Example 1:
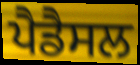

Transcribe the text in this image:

ਪੈਡੈਸਲ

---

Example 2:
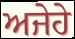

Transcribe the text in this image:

ਅਜੇਹੇ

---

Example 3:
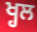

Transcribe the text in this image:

ਖ੍ਹਲ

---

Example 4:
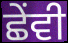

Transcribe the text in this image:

ਛੇੰਵੀ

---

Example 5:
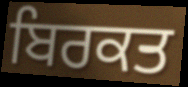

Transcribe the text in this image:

ਬਿਰਕਤ